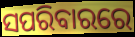
ସପରିବାରରେ